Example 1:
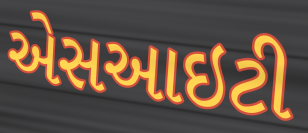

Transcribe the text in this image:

એસઆઇટી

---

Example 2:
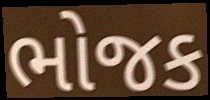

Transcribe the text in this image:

ભોજક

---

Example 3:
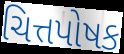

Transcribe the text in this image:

ચિત્તપોષક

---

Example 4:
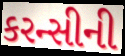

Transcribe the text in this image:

કરન્સીની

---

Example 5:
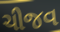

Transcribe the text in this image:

ચીજવ